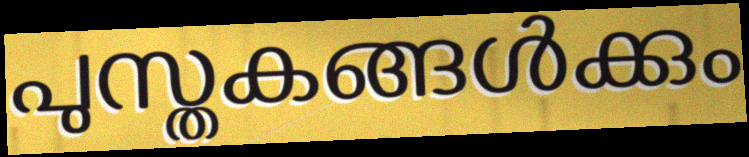
പുസ്തകങ്ങൾക്കും